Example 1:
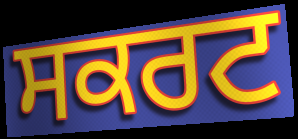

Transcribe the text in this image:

ਸਕਰਟ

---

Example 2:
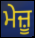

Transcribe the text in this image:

ਮੇਜ਼ੂ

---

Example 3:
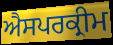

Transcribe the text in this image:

ਐਸਪਰਕ੍ਰੀਮ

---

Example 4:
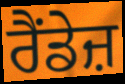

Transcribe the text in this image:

ਰੈਂਡੇਜ਼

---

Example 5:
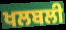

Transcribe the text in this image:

ਖਲਬਲੀ